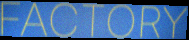
FACTORY